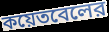
কয়েতবেলের